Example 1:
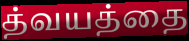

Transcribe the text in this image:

த்வயத்தை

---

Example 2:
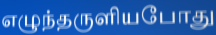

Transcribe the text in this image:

எழுந்தருளியபோது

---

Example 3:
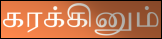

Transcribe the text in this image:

கரக்கினும்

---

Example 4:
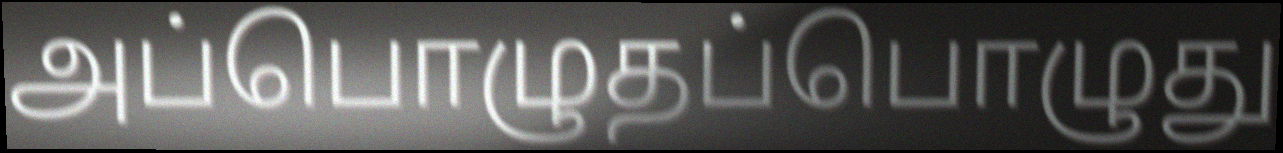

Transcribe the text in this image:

அப்பொழுதப்பொழுது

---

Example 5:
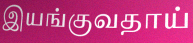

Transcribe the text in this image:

இயங்குவதாய்